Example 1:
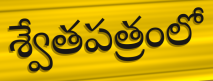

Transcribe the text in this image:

శ్వేతపత్రంలో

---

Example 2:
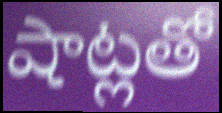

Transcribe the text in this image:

షాట్లతో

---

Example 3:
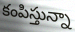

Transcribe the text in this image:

కంపిస్తున్నా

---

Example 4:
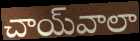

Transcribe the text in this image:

చాయ్‌వాలా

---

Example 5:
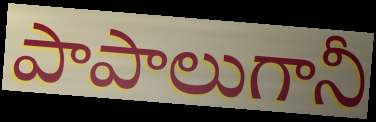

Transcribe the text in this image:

పాపాలుగానీ